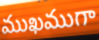
ముఖముగా